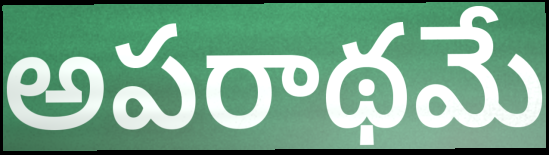
అపరాథమే